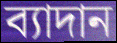
ব্যাদান